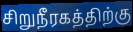
சிறுநீரகத்திற்கு